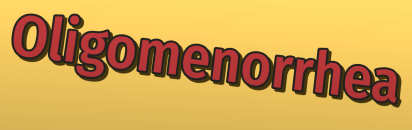
Oligomenorrhea